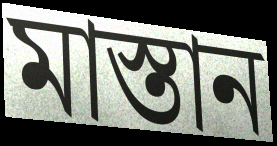
মাস্তান